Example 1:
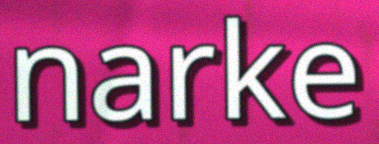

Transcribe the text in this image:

narke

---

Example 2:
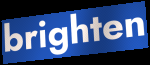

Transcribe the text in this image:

brighten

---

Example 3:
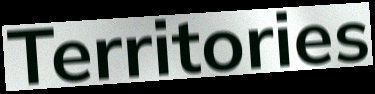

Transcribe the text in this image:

Territories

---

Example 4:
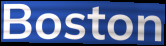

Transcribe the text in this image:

Boston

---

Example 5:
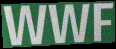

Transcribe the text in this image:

WWF